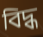
বিদ্ধ